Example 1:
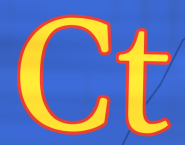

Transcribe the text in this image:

Ct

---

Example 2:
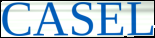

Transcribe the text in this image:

CASEL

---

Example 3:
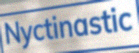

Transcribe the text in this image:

Nyctinastic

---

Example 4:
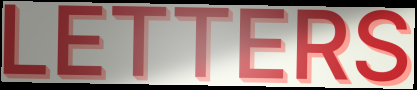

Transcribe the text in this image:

LETTERS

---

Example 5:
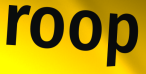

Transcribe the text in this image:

roop